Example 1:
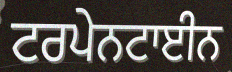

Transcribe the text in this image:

ਟਰਪੇਨਟਾਈਨ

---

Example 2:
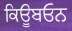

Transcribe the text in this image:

ਕਿਊਬਓਨ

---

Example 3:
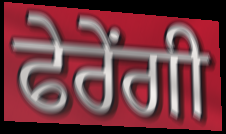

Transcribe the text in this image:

ਫੇਰੇਂਗੀ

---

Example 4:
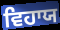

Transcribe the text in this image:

ਵਿਹਾਯ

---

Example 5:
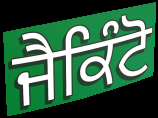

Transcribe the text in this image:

ਜੈਕਿੰਟੋ